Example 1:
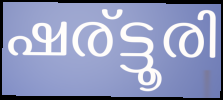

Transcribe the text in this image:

ഷര്ട്ടൂരി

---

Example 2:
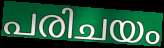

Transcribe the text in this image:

പരിചയം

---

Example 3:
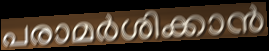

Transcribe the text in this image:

പരാമർശിക്കാൻ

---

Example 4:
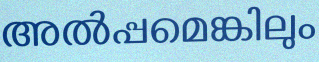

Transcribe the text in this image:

അൽപ്പമെങ്കിലും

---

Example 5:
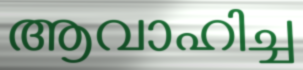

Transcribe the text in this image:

ആവാഹിച്ച